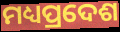
ମଧ୍ୟପ୍ରଦେଶ